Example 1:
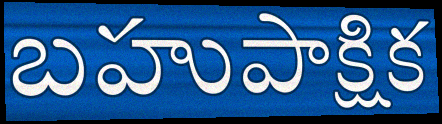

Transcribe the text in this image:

బహుపాక్షిక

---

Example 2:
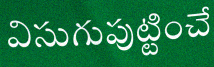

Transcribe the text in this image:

విసుగుపుట్టించే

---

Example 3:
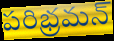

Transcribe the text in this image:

పరిభ్రమన్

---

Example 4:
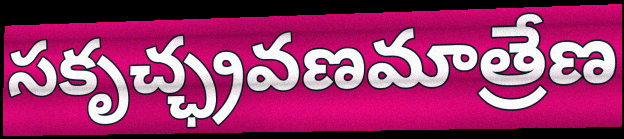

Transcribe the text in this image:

సకృచ్ఛ్రవణమాత్రేణ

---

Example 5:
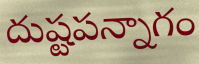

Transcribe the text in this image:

దుష్టపన్నాగం